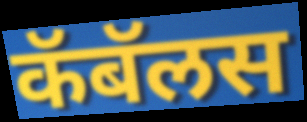
कॅबॅलस